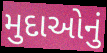
મુદાઓનું